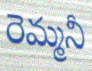
రెమ్మనీ